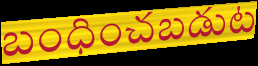
బంధించబడుట